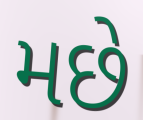
મછે